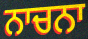
ਨਾਚਨਾ